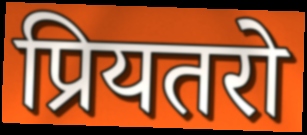
प्रियतरो